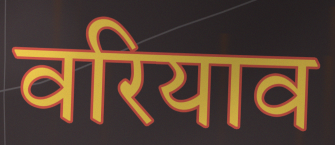
वरियाव